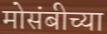
मोसंबीच्या